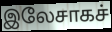
இலேசாகச்